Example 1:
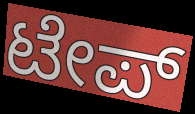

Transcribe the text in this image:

ಟೇಪ್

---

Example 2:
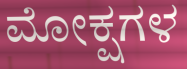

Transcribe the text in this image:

ಮೋಕ್ಷಗಳ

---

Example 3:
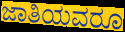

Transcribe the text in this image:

ಜಾತಿಯವರೂ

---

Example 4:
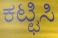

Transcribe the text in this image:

ಕಟ್ಟಿಸಿ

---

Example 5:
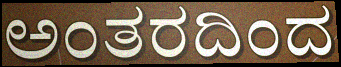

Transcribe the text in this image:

ಅಂತರದಿಂದ